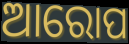
ଆରୋପ